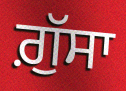
ਗ਼ੁੱਸਾ